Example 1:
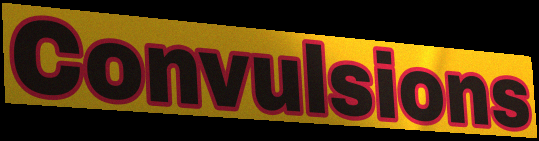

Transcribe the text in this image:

Convulsions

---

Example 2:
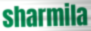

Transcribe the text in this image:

sharmila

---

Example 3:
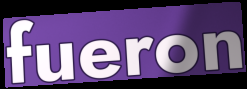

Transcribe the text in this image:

fueron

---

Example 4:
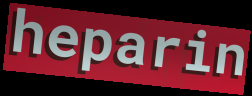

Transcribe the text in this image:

heparin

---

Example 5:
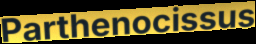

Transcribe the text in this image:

Parthenocissus